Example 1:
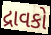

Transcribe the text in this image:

દ્રાવકો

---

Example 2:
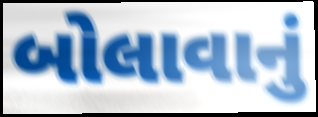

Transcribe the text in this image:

બોલાવાનું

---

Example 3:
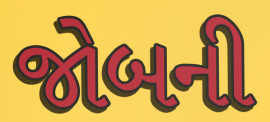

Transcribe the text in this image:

જોબની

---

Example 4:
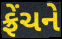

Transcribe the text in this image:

ફ્રેંચને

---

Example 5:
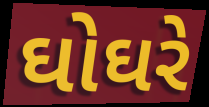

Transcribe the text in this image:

ઘોઘરે